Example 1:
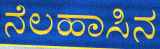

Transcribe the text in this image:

ನೆಲಹಾಸಿನ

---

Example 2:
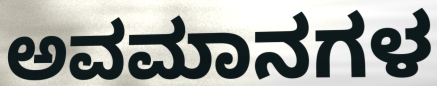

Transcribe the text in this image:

ಅವಮಾನಗಳ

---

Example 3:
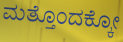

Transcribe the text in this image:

ಮತ್ತೊಂದಕ್ಕೋ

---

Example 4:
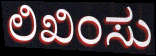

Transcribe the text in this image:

ಲಿಖಿಂಸು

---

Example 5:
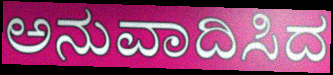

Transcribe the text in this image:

ಅನುವಾದಿಸಿದ